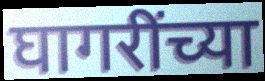
घागरींच्या